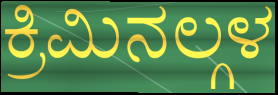
ಕ್ರಿಮಿನಲ್ಗಳ